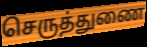
செருத்துணை